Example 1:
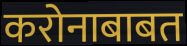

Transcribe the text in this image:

करोनाबाबत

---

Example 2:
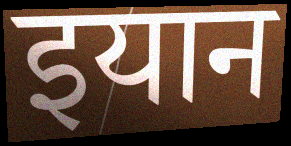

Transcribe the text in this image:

इयान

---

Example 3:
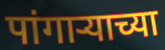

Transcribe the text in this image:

पांगार्‍याच्या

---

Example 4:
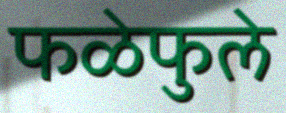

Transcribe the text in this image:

फळेफुले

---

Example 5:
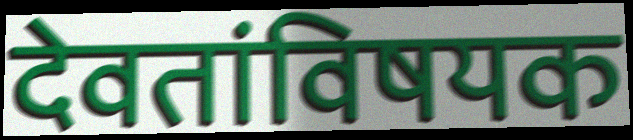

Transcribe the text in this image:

देवतांविषयक